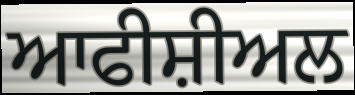
ਆਫੀਸ਼ੀਅਲ